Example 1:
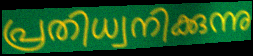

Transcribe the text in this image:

പ്രതിധ്വനിക്കുന്നു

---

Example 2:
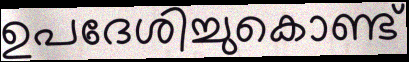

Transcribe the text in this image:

ഉപദേശിച്ചുകൊണ്ട്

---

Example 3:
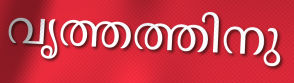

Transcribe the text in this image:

വൃത്തത്തിനു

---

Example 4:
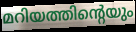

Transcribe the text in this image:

മറിയത്തിന്റെയും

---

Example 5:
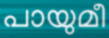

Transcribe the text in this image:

പായുമീ